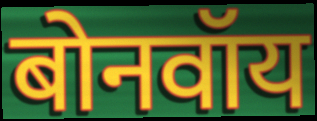
बोनवॉय